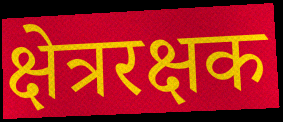
क्षेत्ररक्षक